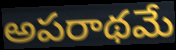
అపరాథమే